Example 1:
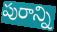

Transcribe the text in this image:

పురాన్ని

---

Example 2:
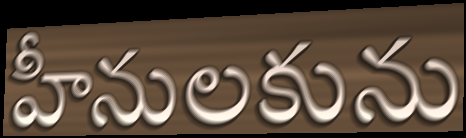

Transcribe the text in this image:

హీనులకును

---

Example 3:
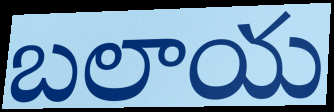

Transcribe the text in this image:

బలాయ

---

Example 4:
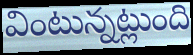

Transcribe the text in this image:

వింటున్నట్లుంది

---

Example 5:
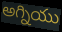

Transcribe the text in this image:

అగ్నియు